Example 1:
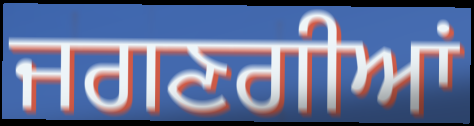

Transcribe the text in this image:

ਜਗਣਗੀਆਂ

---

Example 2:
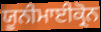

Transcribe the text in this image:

ਯੂਨੀਮਾਈਕ੍ਰੋਨ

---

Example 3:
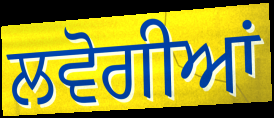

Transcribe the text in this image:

ਲਵੋਗੀਆਂ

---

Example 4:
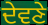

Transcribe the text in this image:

ਦੇਵਣੇ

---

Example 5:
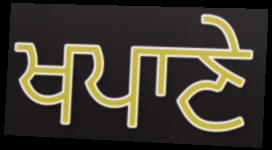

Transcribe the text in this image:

ਖਪਾਣੇ